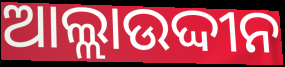
ଆଲ୍ଲାଉଦ୍ଦୀନ